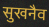
सुखनैव